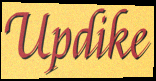
Updike